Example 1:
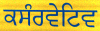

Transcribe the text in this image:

ਕਸੰਰਵੇਟਿਵ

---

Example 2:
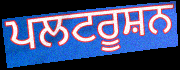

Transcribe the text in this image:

ਪਲਟਰੂਸ਼ਨ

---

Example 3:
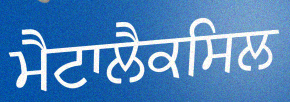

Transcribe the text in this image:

ਮੈਟਾਲੈਕਸਿਲ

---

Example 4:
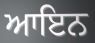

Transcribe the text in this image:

ਆਇਨ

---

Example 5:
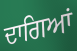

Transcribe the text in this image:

ਦਾਗਿਆਂ